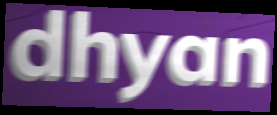
dhyan